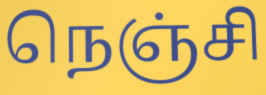
நெஞ்சி